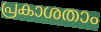
പ്രകാശതാം